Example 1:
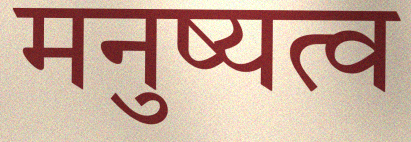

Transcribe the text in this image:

मनुष्यत्‍व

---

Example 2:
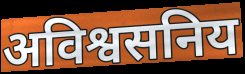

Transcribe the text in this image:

अविश्वसनिय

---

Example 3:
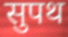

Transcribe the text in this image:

सुपथ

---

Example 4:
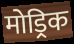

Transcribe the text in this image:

मोड्रिक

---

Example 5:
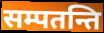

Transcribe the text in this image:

सम्पतन्ति